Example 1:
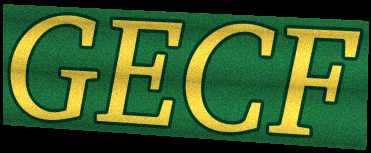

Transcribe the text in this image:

GECF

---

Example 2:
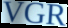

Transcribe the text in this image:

VGR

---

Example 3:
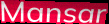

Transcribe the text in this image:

Mansar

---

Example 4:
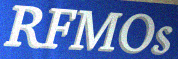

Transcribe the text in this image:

RFMOs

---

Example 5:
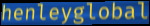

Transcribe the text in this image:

henleyglobal